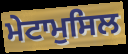
ਮੇਟਾਮੁਸਿਲ